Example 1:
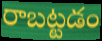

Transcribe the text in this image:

రాబట్టడం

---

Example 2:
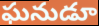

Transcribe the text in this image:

ఘనుడూ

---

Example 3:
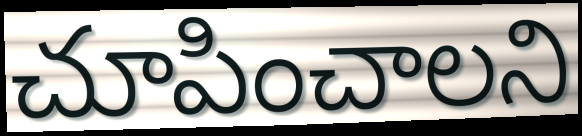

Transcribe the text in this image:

చూపించాలని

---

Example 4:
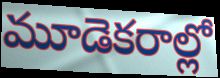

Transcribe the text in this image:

మూడెకరాల్లో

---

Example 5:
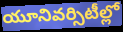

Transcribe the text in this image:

యూనివర్సిటీల్లో